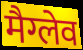
मैग्लेव